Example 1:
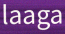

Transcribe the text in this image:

laaga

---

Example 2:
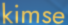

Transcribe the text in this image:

kimse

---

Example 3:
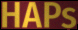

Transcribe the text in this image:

HAPs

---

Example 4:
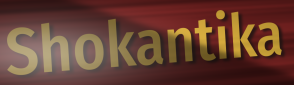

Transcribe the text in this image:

Shokantika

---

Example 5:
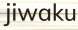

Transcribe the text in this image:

jiwaku